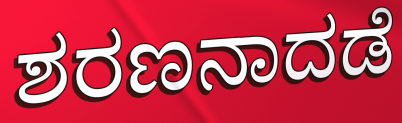
ಶರಣನಾದಡೆ